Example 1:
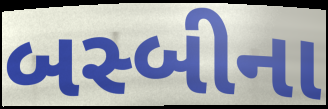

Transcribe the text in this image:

બસ્બીના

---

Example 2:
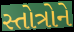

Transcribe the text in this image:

સ્તોત્રોને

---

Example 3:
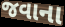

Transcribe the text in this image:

જવાના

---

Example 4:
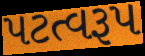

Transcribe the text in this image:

પટત્વરૂપ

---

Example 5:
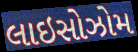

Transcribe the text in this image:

લાઇસોઝોમ